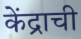
केंद्राची